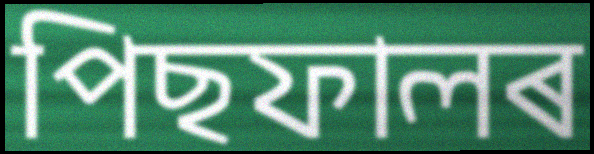
পিছফালৰ